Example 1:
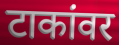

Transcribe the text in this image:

टाकांवर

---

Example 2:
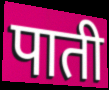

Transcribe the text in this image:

पाती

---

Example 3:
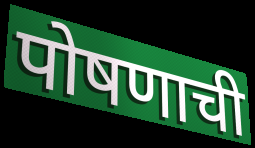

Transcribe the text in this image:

पोषणाची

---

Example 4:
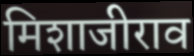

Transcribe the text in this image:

मिशाजीराव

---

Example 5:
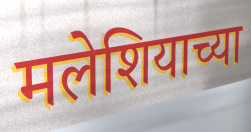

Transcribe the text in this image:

मलेशियाच्या